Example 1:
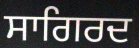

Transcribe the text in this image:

ਸਾਗਿਰਦ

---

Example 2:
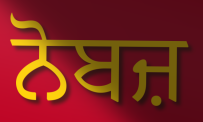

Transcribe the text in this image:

ਨੋਬਜ਼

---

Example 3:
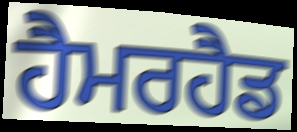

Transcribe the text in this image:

ਹੈਮਰਹੈਡ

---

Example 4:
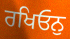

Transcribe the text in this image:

ਰਖਿਓਨੁ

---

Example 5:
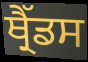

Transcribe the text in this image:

ਥ੍ਰੈੱਡਸ